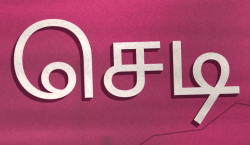
செடி